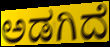
ಅಡಗಿದೆ